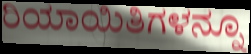
ರಿಯಾಯಿತಿಗಳನ್ನೂ